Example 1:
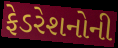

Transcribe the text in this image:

ફેડરેશનોની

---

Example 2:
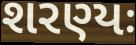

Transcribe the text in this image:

શરણ્યઃ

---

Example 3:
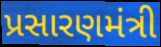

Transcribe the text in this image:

પ્રસારણમંત્રી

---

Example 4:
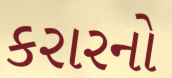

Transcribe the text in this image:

કરારનો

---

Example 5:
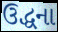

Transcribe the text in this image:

ઉદ્ધના